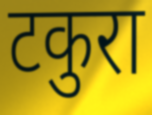
टकुरा